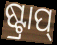
ଷ୍ଟ୍ରାପ୍